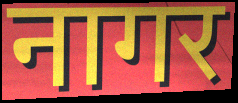
नागर